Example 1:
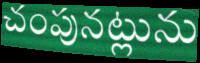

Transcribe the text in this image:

చంపునట్లును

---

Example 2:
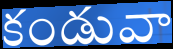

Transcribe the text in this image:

కండువా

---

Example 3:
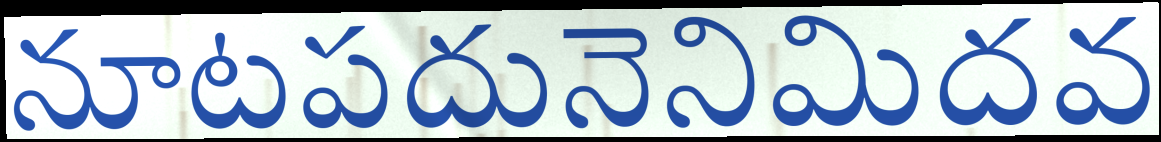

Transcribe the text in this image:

నూటపదునెనిమిదవ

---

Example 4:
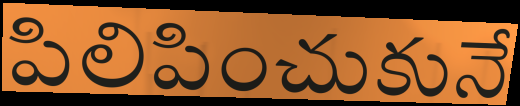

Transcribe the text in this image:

పిలిపించుకునే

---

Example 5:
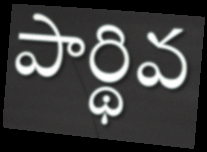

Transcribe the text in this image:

పార్థివ